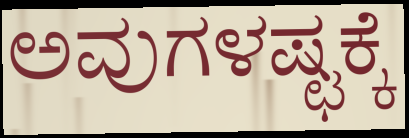
ಅವುಗಳಷ್ಟಕ್ಕೆ